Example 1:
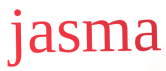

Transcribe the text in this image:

jasma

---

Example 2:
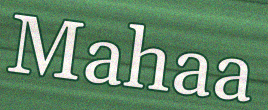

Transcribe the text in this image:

Mahaa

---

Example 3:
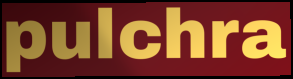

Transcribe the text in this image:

pulchra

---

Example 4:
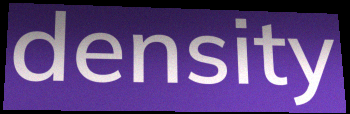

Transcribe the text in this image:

density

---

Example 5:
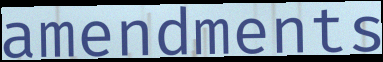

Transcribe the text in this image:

amendments